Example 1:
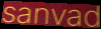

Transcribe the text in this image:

sanvad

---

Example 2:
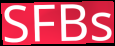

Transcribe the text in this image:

SFBs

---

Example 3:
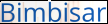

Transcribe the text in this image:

Bimbisar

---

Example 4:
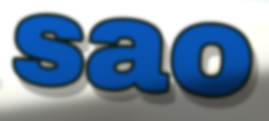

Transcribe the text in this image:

sao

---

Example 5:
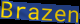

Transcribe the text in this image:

Brazen